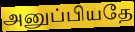
அனுப்பியதே